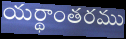
యర్థాంతరము